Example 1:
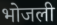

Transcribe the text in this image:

भोजली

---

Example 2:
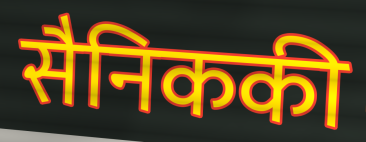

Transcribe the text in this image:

सैनिककी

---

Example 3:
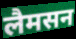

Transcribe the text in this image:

लैमसन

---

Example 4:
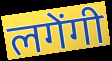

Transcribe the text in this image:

लगेंगी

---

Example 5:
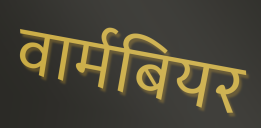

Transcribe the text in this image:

वार्मबियर